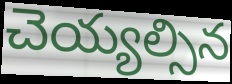
చెయ్యల్సిన